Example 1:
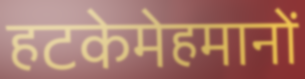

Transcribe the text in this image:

हटकेमेहमानों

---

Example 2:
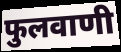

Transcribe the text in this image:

फुलवाणी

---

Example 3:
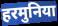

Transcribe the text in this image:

हरमुनिया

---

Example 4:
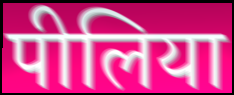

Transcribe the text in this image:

पीलिया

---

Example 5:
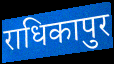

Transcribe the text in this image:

राधिकापुर